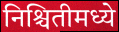
निश्चितीमध्ये